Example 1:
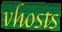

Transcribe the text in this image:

vhosts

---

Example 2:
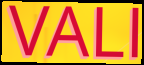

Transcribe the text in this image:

VALI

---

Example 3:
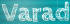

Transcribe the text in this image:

Varad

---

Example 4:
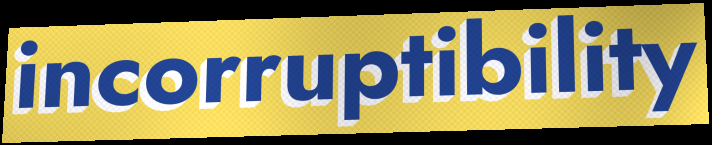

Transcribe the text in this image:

incorruptibility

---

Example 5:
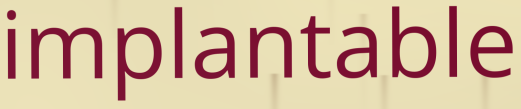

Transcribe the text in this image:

implantable